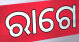
ରାଗେ